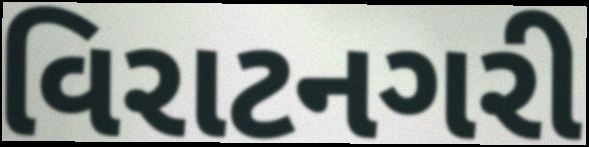
વિરાટનગરી